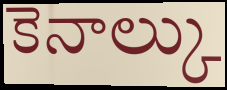
కెనాల్కు